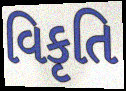
વિકૃતિ